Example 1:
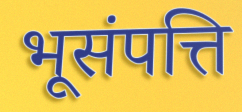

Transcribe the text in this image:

भूसंपत्ति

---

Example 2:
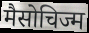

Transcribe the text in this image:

मैसोचिज्म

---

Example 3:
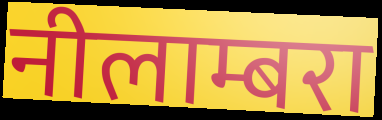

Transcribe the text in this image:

नीलाम्बरा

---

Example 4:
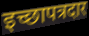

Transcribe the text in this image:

इच्छापत्रदार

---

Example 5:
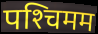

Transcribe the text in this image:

पश्चिमम